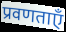
प्रवणताएँ